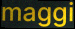
maggi